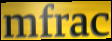
mfrac